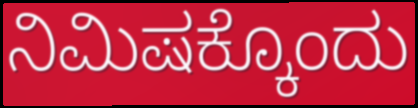
ನಿಮಿಷಕ್ಕೊಂದು